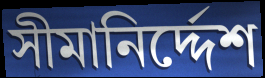
সীমানির্দ্দেশ